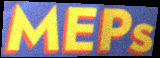
MEPs